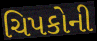
ચિપકોની